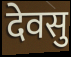
देवसु